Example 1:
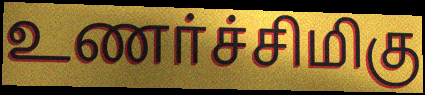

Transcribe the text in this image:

உணர்ச்சிமிகு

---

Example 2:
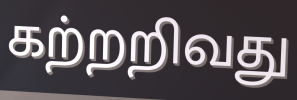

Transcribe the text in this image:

கற்றறிவது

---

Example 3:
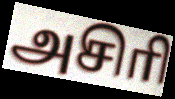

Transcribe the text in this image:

அசிரி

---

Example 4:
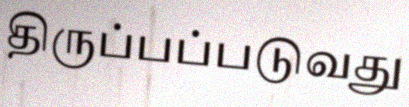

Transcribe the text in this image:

திருப்பப்படுவது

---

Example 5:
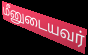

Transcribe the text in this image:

மீனுடையவர்